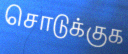
சொடுக்குக